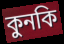
কুনকি